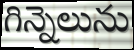
గిన్నెలును